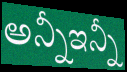
అన్నీఇన్నీ